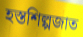
হস্তশিল্পজাত